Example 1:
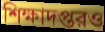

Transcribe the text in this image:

শিক্ষাদপ্তরও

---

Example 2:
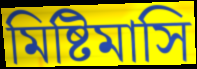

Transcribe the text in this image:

মিষ্টিমাসি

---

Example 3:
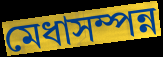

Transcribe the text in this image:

মেধাসম্পন্ন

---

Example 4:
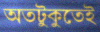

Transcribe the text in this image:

অতটুকুতেই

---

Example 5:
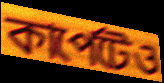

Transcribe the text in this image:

কার্পেটেও